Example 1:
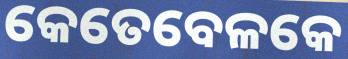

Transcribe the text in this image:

କେତେବେଳକେ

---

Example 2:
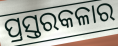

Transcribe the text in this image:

ପ୍ରସ୍ତରକଳାର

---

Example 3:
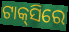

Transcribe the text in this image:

ଟାକ୍‌ସିରେ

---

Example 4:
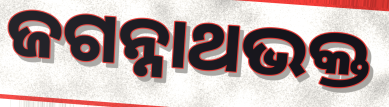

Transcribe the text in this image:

ଜଗନ୍ନାଥଭକ୍ତ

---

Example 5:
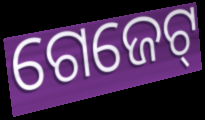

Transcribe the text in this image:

ଗେଜେଟ୍